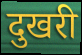
दुखरी